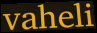
vaheli